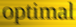
optimal